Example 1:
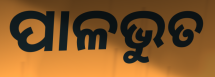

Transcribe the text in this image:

ପାଳଭୁତ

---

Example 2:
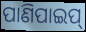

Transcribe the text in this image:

ପାଣିପାଇପ୍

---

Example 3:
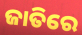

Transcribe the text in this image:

ଜାତିରେ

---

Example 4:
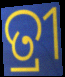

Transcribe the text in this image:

ତ୍ରୀ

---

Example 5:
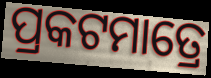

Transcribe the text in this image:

ପ୍ରକଟମାତ୍ରେ